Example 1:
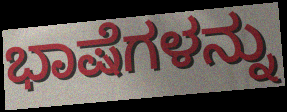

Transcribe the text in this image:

ಭಾಷೆಗಳನ್ನು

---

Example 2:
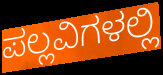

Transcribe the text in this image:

ಪಲ್ಲವಿಗಳಲ್ಲಿ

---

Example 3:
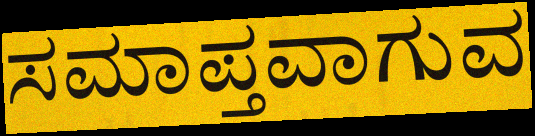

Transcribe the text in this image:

ಸಮಾಪ್ತವಾಗುವ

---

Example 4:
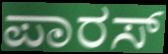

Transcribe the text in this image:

ಪಾರಸ್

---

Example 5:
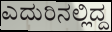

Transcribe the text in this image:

ಎದುರಿನಲ್ಲಿದ್ದ